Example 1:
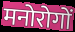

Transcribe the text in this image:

मनोरोगों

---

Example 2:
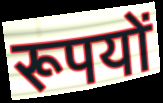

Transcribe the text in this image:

रूपयों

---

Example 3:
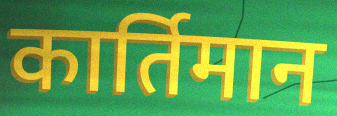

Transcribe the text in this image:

कार्तिमान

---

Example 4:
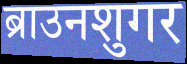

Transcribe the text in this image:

ब्राउनशुगर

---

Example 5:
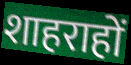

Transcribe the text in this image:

शाहराहों